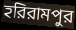
হরিরামপুর